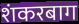
शंकरबाग